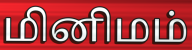
மினிமம்